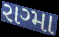
રાગ્મા